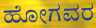
ಹೋಗವರ